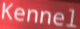
Kennel